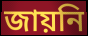
জায়নি